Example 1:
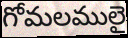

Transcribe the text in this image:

గోమలములై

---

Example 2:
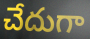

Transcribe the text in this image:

చేదుగా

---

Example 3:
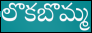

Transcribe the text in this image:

లొకబొమ్మ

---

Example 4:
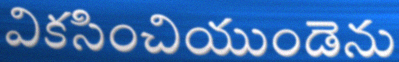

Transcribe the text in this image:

వికసించియుండెను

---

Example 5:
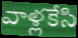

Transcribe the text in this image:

వాళ్లకేసి